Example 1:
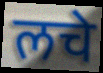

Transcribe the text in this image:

लचे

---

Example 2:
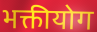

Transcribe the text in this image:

भक्तीयोग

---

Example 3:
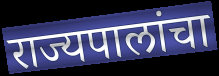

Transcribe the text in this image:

राज्यपालांचा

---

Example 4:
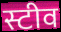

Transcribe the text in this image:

स्टीव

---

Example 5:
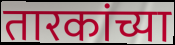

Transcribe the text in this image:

तारकांच्या